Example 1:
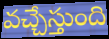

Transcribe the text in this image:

వచ్చేస్తుంది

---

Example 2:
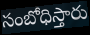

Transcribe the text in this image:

సంబోధిస్తారు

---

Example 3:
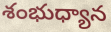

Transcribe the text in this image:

శంభుధ్యాన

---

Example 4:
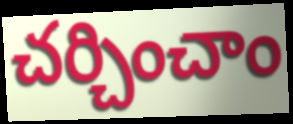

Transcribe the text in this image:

చర్చించాం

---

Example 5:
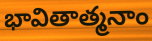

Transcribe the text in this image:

భావితాత్మనాం